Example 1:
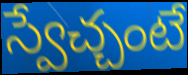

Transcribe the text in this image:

స్వేచ్చంటే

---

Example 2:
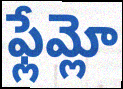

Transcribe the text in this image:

ఫ్లేమ్లో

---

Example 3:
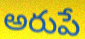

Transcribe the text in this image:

అరుపే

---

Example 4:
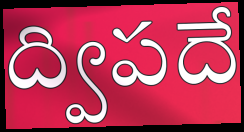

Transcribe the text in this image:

ద్విపదే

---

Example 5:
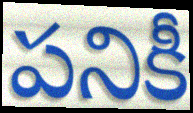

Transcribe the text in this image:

పనికీ